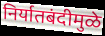
निर्यातबंदीमुळे